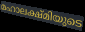
മഹാലക്ഷ്മിയുടെ